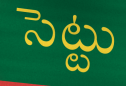
సెట్టు